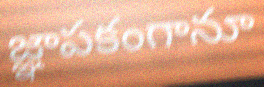
జ్ఞాపకంగానూ